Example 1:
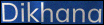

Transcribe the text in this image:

Dikhana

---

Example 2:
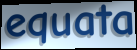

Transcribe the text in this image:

equata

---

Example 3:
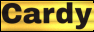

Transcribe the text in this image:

Cardy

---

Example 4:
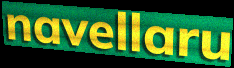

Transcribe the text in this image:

navellaru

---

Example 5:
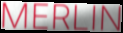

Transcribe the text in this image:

MERLIN